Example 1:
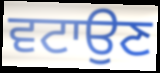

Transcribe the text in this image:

ਵਟਾਉਣ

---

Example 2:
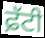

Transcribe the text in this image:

ਫ਼ੱਟੀ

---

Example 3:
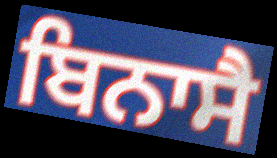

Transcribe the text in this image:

ਬਿਨਾਸੈ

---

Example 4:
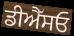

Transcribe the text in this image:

ਡੀਐੱਸਓ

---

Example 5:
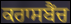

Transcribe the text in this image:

ਕਰਾਸਬੈਂਚ